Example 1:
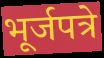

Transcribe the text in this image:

भूर्जपत्रे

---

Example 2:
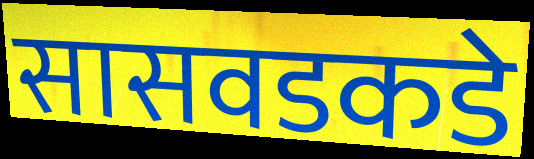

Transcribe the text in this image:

सासवडकडे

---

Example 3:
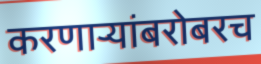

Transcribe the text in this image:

करणाऱ्यांबरोबरच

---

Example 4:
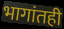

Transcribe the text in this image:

भागांतही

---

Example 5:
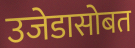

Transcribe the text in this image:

उजेडासोबत